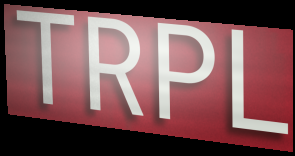
TRPL